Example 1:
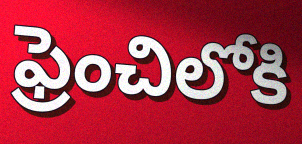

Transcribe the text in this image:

ఫ్రెంచిలోకి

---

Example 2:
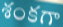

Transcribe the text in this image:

శంకగా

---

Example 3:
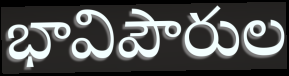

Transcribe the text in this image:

భావిపౌరుల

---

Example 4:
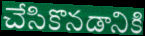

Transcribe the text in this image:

చేసికొనడానికి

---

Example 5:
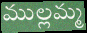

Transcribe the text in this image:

ముల్లమ్మ